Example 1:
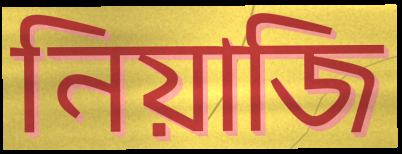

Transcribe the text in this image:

নিয়াজি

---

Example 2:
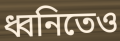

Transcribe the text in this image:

ধ্বনিতেও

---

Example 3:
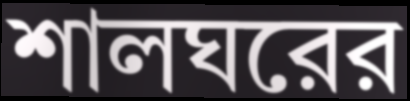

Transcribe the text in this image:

শালঘরের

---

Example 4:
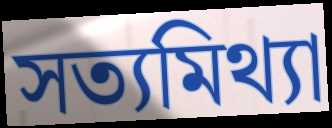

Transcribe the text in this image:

সত্যমিথ্যা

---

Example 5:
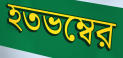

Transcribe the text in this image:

হতভম্বের